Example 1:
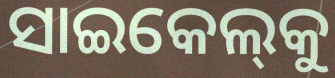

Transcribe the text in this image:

ସାଇକେଲ୍‌କୁ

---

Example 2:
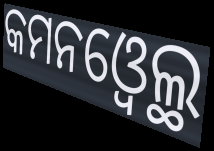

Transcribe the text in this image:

କମନଓ୍ବେଲ୍ଥ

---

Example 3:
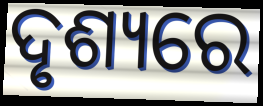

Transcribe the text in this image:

ଦୃଶ୍ୟରେ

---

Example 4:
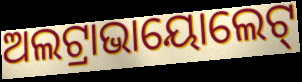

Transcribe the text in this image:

ଅଲଟ୍ରାଭାୟୋଲେଟ୍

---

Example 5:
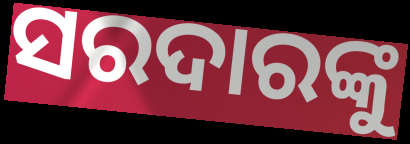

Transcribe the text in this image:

ସରଦାରଙ୍କୁ